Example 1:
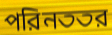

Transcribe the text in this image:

পরিনততর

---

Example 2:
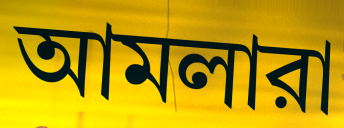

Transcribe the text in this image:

আমলারা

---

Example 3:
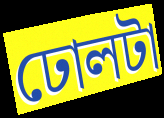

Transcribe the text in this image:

ঢোলটা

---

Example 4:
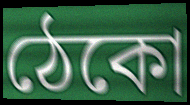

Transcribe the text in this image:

ঠেকো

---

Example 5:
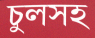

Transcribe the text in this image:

চুলসহ